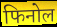
फिनोल